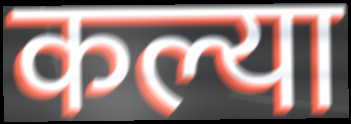
कल्या